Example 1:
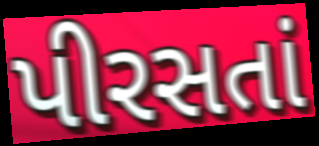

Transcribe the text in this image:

પીરસતાં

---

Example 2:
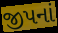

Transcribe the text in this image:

જીપનાં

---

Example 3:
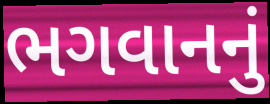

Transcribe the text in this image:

ભગવાનનું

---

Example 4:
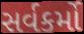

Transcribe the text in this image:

સર્વકર્મો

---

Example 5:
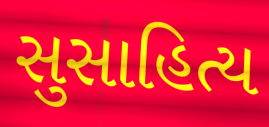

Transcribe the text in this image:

સુસાહિત્ય